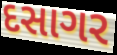
દસાગર